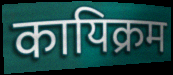
कायिक्रम